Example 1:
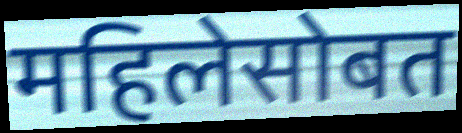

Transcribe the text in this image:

महिलेसोबत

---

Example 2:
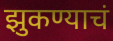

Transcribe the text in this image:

झुकण्याचं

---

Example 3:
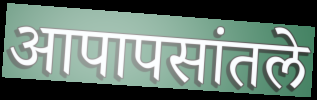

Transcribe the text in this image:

आपापसांतले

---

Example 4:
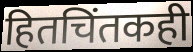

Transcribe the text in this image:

हितचिंतकही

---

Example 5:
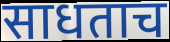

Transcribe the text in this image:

साधताच